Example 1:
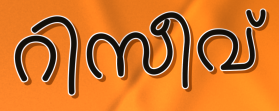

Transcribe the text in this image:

റിസീവ്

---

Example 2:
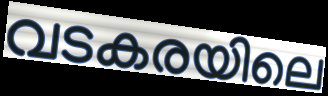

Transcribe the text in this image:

വടകരയിലെ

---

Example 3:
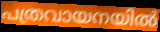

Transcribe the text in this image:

പത്രവായനയിൽ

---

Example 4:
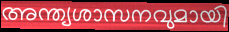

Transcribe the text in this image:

അന്ത്യശാസനവുമായി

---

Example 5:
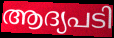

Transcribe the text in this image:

ആദ്യപടി